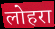
लोहरा